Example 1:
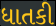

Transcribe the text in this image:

ધાતકી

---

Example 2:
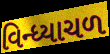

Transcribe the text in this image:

વિન્ધ્યાચળ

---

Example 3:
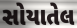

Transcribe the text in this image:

સોયાતેલ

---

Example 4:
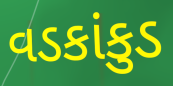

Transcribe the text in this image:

વડકાંકુડ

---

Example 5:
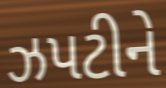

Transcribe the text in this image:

ઝપટીને